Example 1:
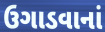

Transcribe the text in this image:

ઉગાડવાનાં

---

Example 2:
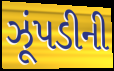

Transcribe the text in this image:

ઝૂંપડીની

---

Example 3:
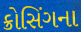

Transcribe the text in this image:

ક્રોસિંગના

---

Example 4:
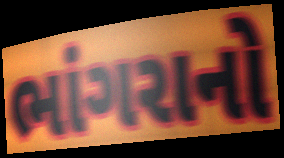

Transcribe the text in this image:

ભાંગરાનો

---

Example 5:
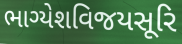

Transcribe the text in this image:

ભાગ્યેશવિજયસૂરિ